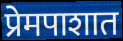
प्रेमपाशात